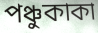
পঞ্চুকাকা